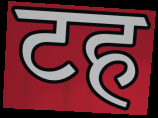
टह